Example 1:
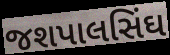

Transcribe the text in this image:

જશપાલસિંઘ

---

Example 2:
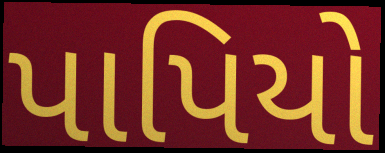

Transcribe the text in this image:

પાપિયો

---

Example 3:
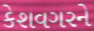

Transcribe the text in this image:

કેશવગરને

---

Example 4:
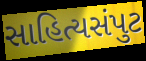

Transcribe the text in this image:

સાહિત્યસંપુટ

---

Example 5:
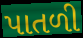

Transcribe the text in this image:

પાતળી